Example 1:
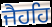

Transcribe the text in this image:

ਜੈਹਹਿ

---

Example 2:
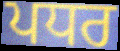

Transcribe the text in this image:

ਪਧਰ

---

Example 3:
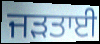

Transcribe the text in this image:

ਜੜਤਾਈ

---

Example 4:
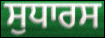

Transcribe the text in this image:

ਸੁਧਾਰਸ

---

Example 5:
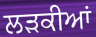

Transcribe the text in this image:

ਲੜਕੀਆਂ